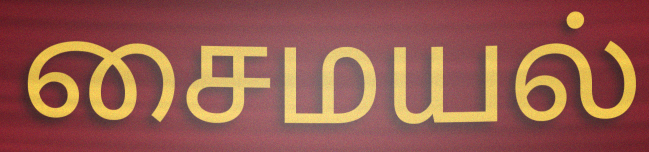
சைமயல்